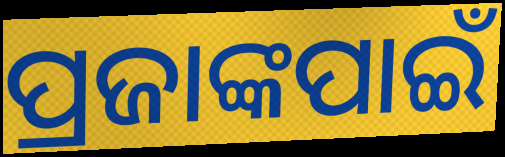
ପ୍ରଜାଙ୍କପାଇଁ